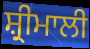
ਸ਼੍ਰੀਮਾਲੀ